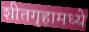
शीतगृहामध्ये